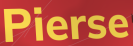
Pierse